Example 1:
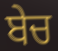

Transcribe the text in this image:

ਬੇਚ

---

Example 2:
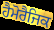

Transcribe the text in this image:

ਹੈਮੋਰੈਜਿਕ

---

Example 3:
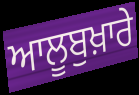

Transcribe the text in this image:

ਆਲੂਬੁਖ਼ਾਰੇ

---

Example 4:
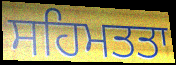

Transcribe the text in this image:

ਸਹਿਮਤਤਾ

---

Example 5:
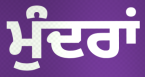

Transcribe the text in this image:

ਮੁੰਦਰਾਂ